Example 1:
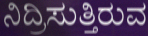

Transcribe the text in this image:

ನಿದ್ರಿಸುತ್ತಿರುವ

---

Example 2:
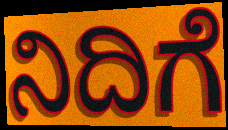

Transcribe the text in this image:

ನಿದಿಗೆ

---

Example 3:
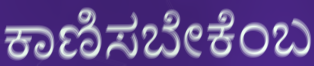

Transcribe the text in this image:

ಕಾಣಿಸಬೇಕೆಂಬ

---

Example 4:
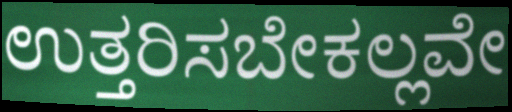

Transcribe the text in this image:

ಉತ್ತರಿಸಬೇಕಲ್ಲವೇ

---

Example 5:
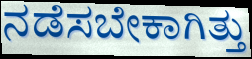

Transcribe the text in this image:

ನಡೆಸಬೇಕಾಗಿತ್ತು